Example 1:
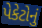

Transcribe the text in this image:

પેકેટોનું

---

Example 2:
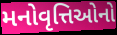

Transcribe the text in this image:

મનોવૃત્તિઓનો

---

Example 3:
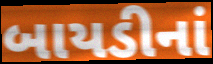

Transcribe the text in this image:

બાયડીનાં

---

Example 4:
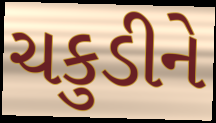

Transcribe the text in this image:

ચકુડીને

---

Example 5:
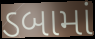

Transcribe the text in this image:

ડબામાં